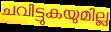
ചവിട്ടുകയുമില്ല